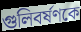
গুলিবর্ষণকে